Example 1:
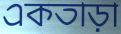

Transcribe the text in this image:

একতাড়া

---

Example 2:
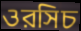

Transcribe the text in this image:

ওরসিচ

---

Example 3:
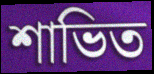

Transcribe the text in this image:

শাভিত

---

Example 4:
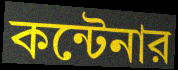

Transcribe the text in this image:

কন্টেনার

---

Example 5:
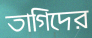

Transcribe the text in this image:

তাগিদের